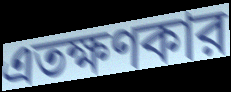
এতক্ষণকার